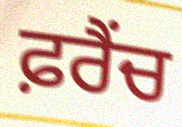
ਫ਼ਰੈਂਚ